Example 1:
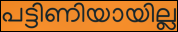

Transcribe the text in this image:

പട്ടിണിയായില്ല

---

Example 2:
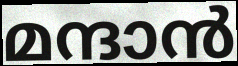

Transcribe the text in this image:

മന്ദാൻ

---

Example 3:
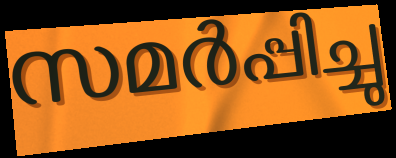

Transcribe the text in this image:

സമർപ്പിച്ചു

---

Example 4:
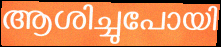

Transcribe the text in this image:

ആശിച്ചുപോയി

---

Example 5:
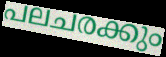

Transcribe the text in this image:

പലചരക്കും